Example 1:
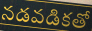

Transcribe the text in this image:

నడవడికతో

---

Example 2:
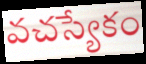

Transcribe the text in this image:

వచస్యేకం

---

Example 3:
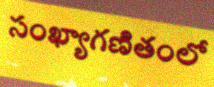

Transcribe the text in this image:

సంఖ్యాగణితంలో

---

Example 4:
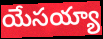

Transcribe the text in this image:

యేసయ్యా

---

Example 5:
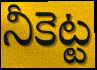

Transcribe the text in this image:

నీకెట్ట